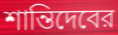
শান্তিদেবের